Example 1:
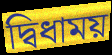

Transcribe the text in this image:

দ্বিধাময়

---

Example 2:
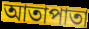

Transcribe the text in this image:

আতাপাতা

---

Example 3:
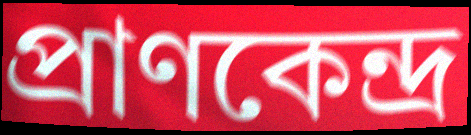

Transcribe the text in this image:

প্রাণকেন্দ্র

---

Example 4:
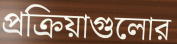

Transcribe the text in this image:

প্রক্রিয়াগুলোর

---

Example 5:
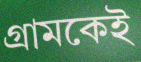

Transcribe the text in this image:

গ্রামকেই